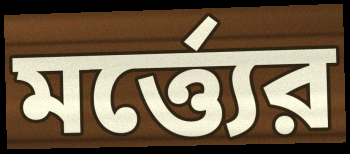
মর্ত্ত্যের